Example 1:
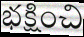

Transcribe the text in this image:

భక్షించి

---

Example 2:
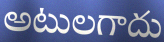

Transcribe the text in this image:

అటులగాదు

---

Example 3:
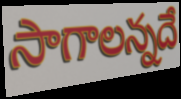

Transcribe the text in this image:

సాగాలన్నదే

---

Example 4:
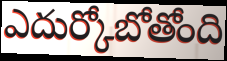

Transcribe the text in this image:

ఎదుర్కోబోతోంది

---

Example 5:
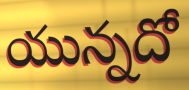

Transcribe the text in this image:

యున్నదో